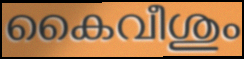
കൈവീശും